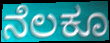
ನೆಲಕೂ